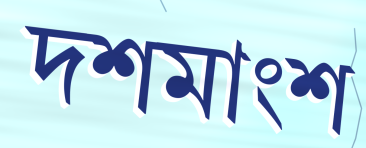
দশমাংশ